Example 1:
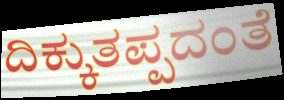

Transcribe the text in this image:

ದಿಕ್ಕುತಪ್ಪದಂತೆ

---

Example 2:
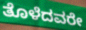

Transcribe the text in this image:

ತೊಳೆದವರೇ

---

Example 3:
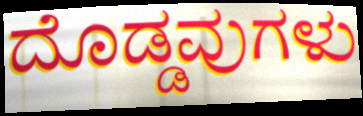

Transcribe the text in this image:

ದೊಡ್ಡವುಗಳು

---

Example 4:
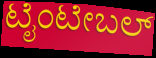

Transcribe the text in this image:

ಟೈಂಟೇಬಲ್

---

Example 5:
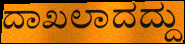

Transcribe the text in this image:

ದಾಖಲಾದದ್ದು